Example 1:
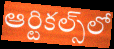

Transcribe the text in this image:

ఆర్టికల్స్‌లో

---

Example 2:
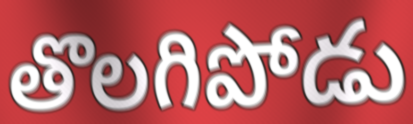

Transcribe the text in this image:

తొలగిపోడు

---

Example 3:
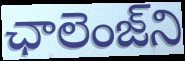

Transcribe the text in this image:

ఛాలెంజ్‌ని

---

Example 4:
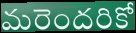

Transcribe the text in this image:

మరెందరికో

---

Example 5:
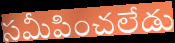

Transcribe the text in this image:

సమీపించలేడు